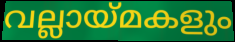
വല്ലായ്മകളും